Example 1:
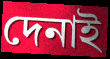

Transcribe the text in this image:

দেনাই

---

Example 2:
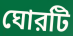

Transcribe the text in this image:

ঘোরটি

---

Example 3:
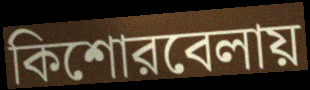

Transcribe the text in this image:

কিশোরবেলায়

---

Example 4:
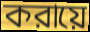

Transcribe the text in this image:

করায়ে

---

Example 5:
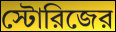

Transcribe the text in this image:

স্টোরিজের